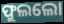
ଫୁଲଲୋ